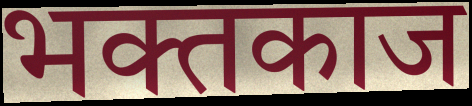
भक्तकाज